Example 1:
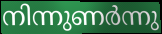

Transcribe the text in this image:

നിന്നുണർന്നു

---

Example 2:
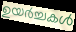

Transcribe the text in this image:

ഉയർച്ചകൾ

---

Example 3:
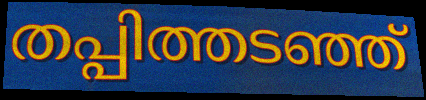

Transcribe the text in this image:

തപ്പിത്തടഞ്ഞ്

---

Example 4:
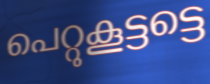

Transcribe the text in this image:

പെറ്റുകൂട്ടട്ടെ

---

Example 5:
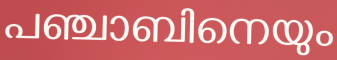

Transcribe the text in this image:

പഞ്ചാബിനെയും